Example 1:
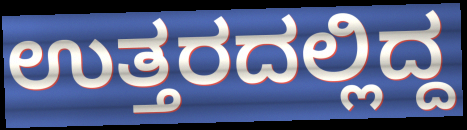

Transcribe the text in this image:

ಉತ್ತರದಲ್ಲಿದ್ದ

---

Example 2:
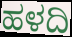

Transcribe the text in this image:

ಹಳದಿ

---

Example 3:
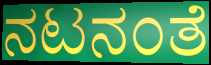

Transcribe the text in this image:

ನಟನಂತೆ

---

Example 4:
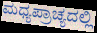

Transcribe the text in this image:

ಮಧ್ಯಪ್ರಾಚ್ಯದಲ್ಲಿ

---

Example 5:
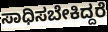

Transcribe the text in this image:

ಸಾಧಿಸಬೇಕಿದ್ದರೆ